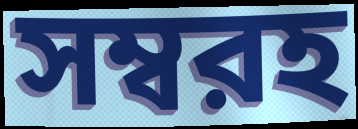
সম্বরহ